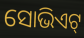
ସୋଭିଏଟ୍